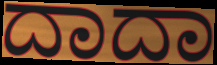
ದಾದಾ